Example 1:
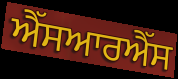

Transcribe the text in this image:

ਐੱਸਆਰਐੱਸ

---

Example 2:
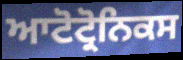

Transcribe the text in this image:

ਆਟੋਟ੍ਰੋਨਿਕਸ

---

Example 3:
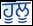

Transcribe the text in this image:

ਹੂਲੂ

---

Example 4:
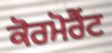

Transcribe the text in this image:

ਕੋਰਮੋਰੈਂਟ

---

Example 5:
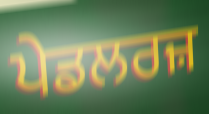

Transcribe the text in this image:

ਪੇਡਲਰਜ਼